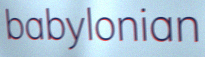
babylonian